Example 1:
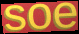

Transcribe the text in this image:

soe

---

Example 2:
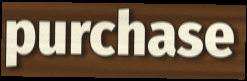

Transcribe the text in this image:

purchase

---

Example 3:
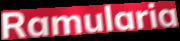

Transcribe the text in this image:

Ramularia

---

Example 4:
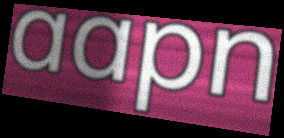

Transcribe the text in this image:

aapn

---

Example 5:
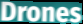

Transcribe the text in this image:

Drones